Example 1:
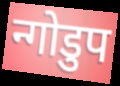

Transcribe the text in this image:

न्गोडुप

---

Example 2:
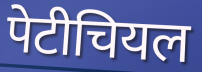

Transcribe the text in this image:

पेटीचियल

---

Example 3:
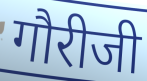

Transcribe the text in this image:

गौरीजी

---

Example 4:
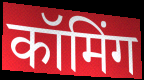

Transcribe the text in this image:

कॉमिंग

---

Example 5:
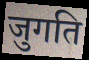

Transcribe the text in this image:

जुगति